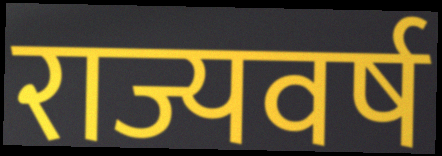
राज्यवर्ष